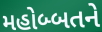
મહોબ્બતને